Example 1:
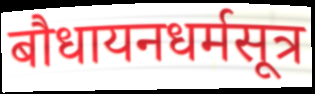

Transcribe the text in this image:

बौधायनधर्मसूत्र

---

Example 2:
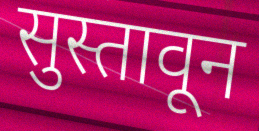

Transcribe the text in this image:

सुस्तावून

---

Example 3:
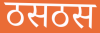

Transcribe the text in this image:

ठसठस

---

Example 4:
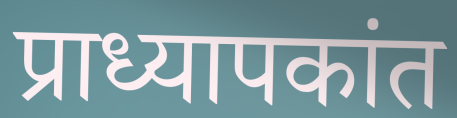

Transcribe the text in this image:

प्राध्यापकांत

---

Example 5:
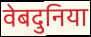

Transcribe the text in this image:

वेबदुनिया